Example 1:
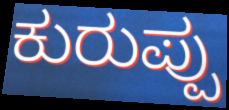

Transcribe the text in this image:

ಕುರುಪ್ಪು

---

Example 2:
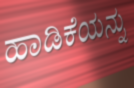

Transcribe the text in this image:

ಹಾಡಿಕೆಯನ್ನು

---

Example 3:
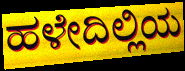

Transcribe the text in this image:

ಹಳೇದಿಲ್ಲಿಯ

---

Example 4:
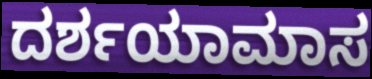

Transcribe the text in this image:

ದರ್ಶಯಾಮಾಸ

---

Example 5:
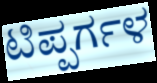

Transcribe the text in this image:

ಟಿಪ್ಪರ್ಗಳ